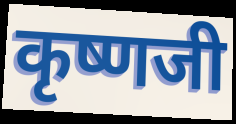
कृष्णजी